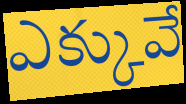
ఎక్కువే